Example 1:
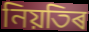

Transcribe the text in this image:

নিয়তিৰ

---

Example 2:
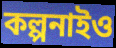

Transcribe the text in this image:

কল্পনাইও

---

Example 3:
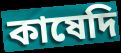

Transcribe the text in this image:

কাষেদি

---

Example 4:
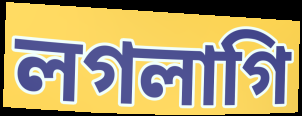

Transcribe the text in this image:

লগলাগি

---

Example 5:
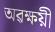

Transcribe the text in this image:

অৱক্ষয়ী